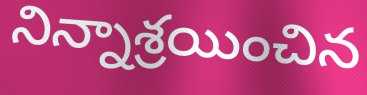
నిన్నాశ్రయించిన